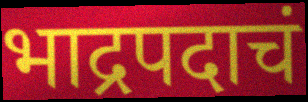
भाद्रपदाचं